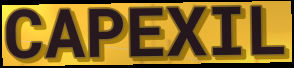
CAPEXIL